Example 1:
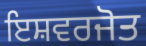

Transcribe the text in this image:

ਇਸ਼ਵਰਜੋਤ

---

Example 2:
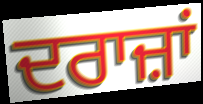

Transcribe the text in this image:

ਦਰਾਜ਼ਾਂ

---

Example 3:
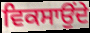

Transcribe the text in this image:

ਵਿਕਸਾਉਂਦੇ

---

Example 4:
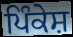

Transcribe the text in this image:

ਪਿੰਕੇਸ਼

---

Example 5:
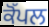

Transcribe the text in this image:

ਕੋੱਪਲ